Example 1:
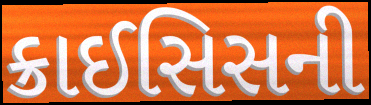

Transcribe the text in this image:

ક્રાઈસિસની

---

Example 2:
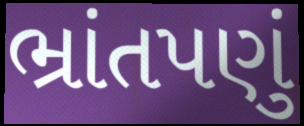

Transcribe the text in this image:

ભ્રાંતપણું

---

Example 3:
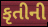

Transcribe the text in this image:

કૃતીની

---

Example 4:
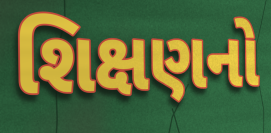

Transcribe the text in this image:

શિક્ષણનો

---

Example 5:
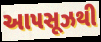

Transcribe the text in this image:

આપસૂઝથી